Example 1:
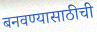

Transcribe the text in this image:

बनवण्यासाठीची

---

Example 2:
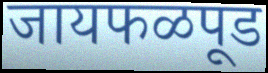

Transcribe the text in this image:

जायफळपूड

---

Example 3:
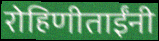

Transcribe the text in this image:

रोहिणीताईंनी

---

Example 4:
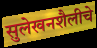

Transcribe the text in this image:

सुलेखनशैलीचे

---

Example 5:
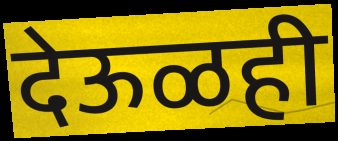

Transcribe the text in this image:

देऊळही